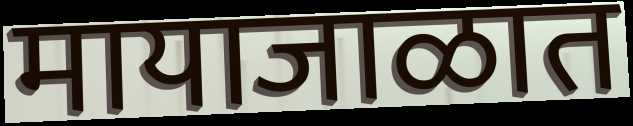
मायाजाळात